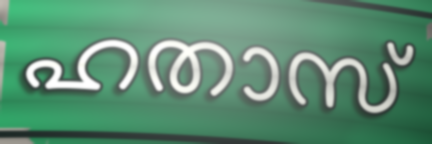
ഹതാസ്